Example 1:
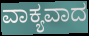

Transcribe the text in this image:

ವಾಕ್ಯವಾದ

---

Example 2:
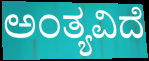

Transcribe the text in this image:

ಅಂತ್ಯವಿದೆ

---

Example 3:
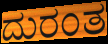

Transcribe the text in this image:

ದುರಂತ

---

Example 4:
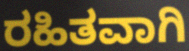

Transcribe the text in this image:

ರಹಿತವಾಗಿ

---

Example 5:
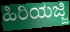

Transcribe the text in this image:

ಹಿರಿಯಜ್ಜಿ